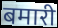
बमारी